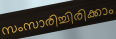
സംസാരിച്ചിരിക്കാം